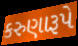
કરુણારૂપે